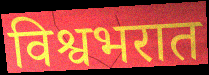
विश्वभरात